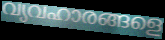
വ്യവഹാരങ്ങളെ